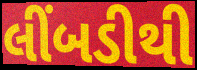
લીંબડીથી